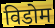
विडोम